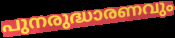
പുനരുദ്ധാരണവും